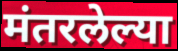
मंतरलेल्या